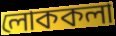
লোককলা